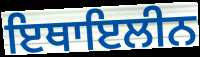
ਇਥਾਇਲੀਨ